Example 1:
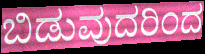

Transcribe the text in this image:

ಬಿಡುವುದರಿಂದ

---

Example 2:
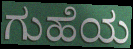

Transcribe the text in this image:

ಗುಹೆಯ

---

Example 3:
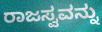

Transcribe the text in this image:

ರಾಜಸ್ವವನ್ನು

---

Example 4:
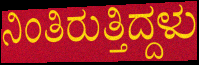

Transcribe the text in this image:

ನಿಂತಿರುತ್ತಿದ್ದಳು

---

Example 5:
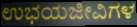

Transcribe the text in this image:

ಉಭಯಜೀವಿಗಳ